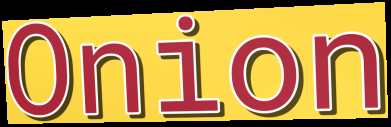
Onion